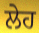
ਲੇਹ